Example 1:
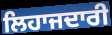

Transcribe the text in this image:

ਲਿਹਾਜਦਾਰੀ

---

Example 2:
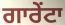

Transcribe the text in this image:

ਗਾਰੇਂਟਾ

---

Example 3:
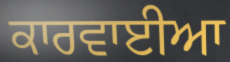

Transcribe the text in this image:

ਕਾਰਵਾਈਆ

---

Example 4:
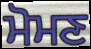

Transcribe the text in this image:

ਮੋਮਣ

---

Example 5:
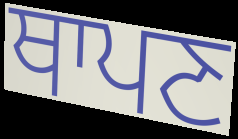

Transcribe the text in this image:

ਥਾਪਣ